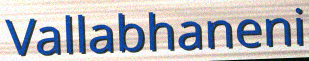
Vallabhaneni